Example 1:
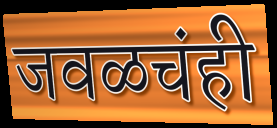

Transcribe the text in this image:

जवळचंही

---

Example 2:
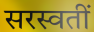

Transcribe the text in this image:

सरस्वतीं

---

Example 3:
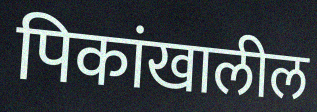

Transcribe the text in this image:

पिकांखालील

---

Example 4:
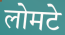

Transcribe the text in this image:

लोमटे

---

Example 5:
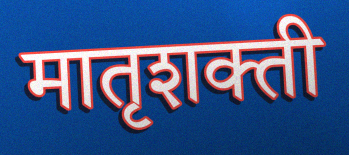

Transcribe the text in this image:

मातृशक्ती